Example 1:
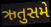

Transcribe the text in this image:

ઋતુસમે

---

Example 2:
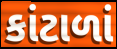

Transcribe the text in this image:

કાંટાળાં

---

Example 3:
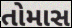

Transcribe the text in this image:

તોમાસ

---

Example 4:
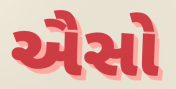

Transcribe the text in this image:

ઐસો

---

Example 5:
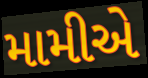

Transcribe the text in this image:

મામીએ